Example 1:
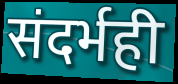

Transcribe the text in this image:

संदर्भही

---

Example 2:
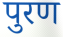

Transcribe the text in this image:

पुरण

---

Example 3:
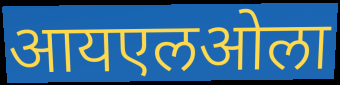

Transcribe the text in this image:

आयएलओला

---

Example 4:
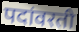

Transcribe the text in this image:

पदांवरती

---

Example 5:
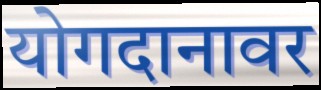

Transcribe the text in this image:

योगदानावर